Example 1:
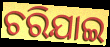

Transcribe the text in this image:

ଚରିଯାଇ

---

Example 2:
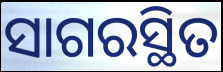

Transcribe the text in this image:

ସାଗରସ୍ଥିତ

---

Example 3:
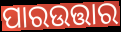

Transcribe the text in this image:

ପାରଉତ୍ତାର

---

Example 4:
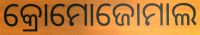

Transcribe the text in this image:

କ୍ରୋମୋଜୋମାଲ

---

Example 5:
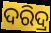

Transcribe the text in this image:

ଦରିଦ୍ର